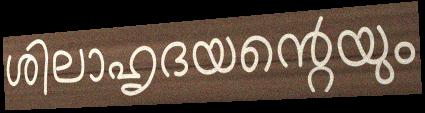
ശിലാഹൃദയന്റെയും